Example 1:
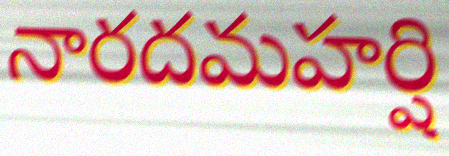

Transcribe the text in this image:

నారదమహర్షి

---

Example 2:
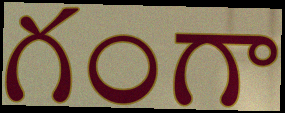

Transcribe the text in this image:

గంగా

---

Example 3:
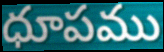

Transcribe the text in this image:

ధూపము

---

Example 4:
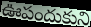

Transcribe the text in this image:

ఊపందుకుని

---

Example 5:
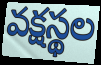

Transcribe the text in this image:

వక్షస్థల